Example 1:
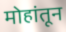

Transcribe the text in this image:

मोहांतून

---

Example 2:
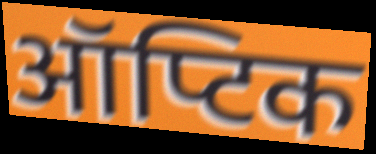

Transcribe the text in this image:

ऑप्टिक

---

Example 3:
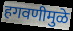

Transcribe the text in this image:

हगवणीमुळे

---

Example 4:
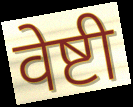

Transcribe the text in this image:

वेष्टी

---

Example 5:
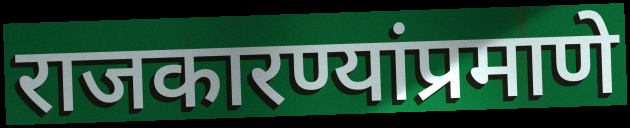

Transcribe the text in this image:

राजकारण्यांप्रमाणे